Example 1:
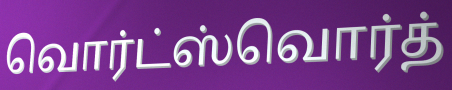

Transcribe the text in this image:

வொர்ட்ஸ்வொர்த்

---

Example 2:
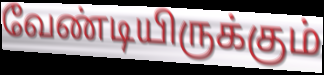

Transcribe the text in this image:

வேண்டியிருக்கும்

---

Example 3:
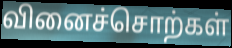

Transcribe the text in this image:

வினைச்சொற்கள்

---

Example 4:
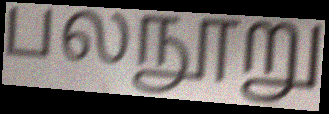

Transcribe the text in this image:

பலநூறு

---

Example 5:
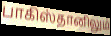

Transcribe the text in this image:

பாகிஸ்தானிலும்